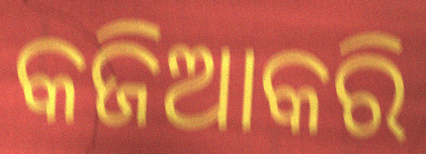
କଜିଆକରି